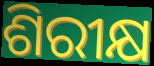
ଶିରୀକ୍ଷ